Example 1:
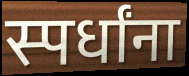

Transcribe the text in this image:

स्पर्धांना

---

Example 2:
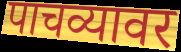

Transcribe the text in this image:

पाचव्यावर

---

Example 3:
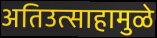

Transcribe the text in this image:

अतिउत्साहामुळे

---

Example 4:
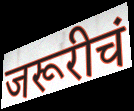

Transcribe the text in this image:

जरूरीचं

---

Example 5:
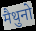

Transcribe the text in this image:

मैथुनो